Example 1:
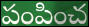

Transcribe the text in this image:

పంపించ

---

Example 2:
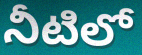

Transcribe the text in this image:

నీటిలో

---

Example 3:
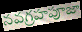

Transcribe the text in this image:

నవగ్రహపూజా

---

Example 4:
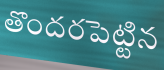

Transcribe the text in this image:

తొందరపెట్టిన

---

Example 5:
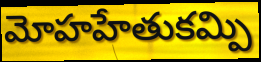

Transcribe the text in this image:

మోహహేతుకమ్పి